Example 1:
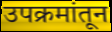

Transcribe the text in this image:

उपक्रमांतून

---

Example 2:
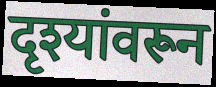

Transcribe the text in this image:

दृश्यांवरून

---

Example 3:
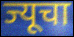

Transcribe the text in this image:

ज्यूचा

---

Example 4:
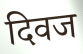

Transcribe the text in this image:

दिवज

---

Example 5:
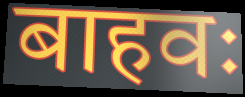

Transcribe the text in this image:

बाहवः